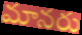
మానరు